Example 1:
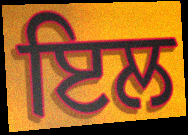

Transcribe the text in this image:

ਇਲ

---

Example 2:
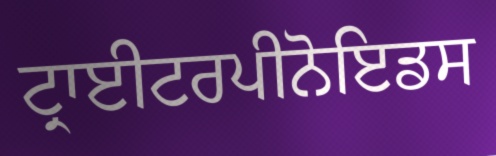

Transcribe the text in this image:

ਟ੍ਰਾਈਟਰਪੀਨੋਇਡਸ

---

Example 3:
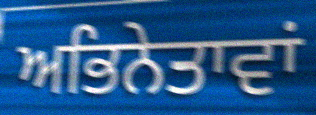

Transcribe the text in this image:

ਅਭਿਨੇਤਾਵਾਂ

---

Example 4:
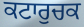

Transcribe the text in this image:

ਕਟਾਰੁਚਕ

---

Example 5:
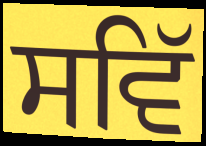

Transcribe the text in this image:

ਸਵਿੱ